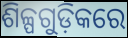
ଶିଳ୍ପଗୁଡ଼ିକରେ